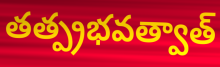
తత్ప్రభవత్వాత్